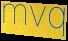
mvq